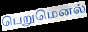
பெறுமெனல்